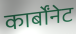
कार्बोंनेट